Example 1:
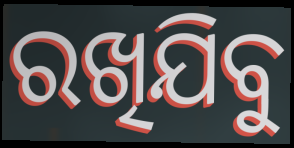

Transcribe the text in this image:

ରଖିଯିବୁ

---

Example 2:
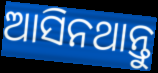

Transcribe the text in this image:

ଆସିନଥାନ୍ତୁ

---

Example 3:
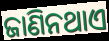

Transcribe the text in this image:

ଜାଣିନଥାଏ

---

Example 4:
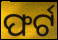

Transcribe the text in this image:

ଫର୍ଟ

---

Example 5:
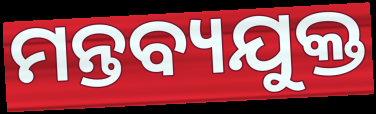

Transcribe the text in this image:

ମନ୍ତବ୍ୟଯୁକ୍ତ